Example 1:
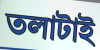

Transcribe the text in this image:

তলাটাই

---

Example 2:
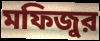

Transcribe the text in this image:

মফিজুর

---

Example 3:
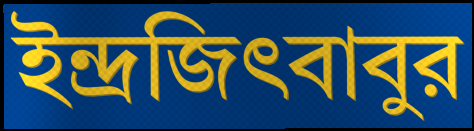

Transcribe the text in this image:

ইন্দ্রজিৎবাবুর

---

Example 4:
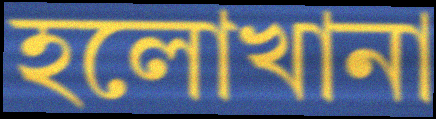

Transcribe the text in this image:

হলোখানা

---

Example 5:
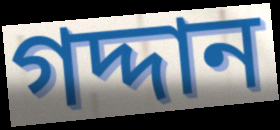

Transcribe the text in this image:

গদ্দান